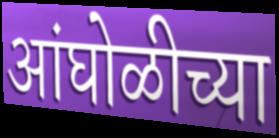
आंघोळीच्या